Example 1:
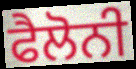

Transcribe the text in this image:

ਫੈਲੋਨੀ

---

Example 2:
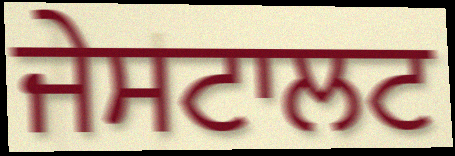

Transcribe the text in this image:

ਜੇਸਟਾਲਟ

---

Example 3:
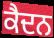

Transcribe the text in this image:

ਕੈਦਨ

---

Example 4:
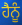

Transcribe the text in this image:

ਹੈਨੂੰ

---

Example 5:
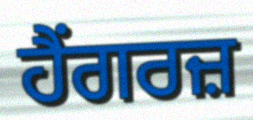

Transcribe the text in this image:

ਹੈਂਗਰਜ਼